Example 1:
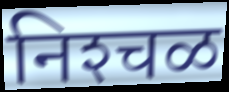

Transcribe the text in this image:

निश्चळ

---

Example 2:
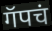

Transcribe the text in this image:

गॅपचं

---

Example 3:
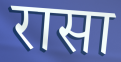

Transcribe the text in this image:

रासा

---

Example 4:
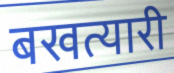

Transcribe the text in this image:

बखत्यारी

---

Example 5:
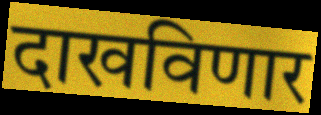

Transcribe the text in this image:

दाखविणार